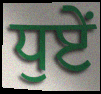
ਧੁਏਂ